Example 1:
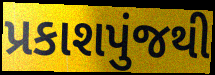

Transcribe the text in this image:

પ્રકાશપુંજથી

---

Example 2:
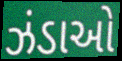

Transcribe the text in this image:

ઝંડાઓ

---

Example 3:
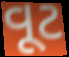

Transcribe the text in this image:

વૂટ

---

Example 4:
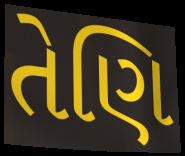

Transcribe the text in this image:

તેણિ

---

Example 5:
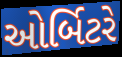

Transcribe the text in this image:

ઓર્બિટરે